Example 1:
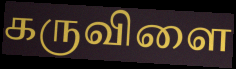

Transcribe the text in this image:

கருவிளை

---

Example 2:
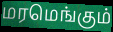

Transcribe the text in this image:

மரமெங்கும்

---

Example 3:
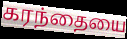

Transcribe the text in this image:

கரந்தையை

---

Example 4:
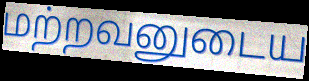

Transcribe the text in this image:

மற்றவனுடைய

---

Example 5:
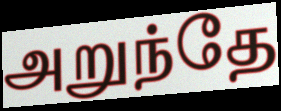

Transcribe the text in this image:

அறுந்தே